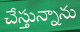
చేస్తున్నాను